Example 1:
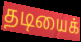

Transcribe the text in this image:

தடியைக்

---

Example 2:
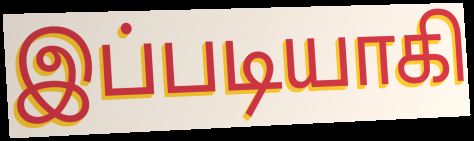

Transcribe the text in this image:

இப்படியாகி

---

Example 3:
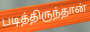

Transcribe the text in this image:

படித்திருந்தான்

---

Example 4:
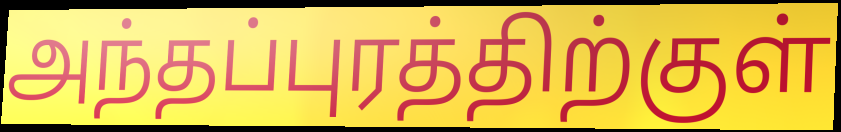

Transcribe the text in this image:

அந்தப்புரத்திற்குள்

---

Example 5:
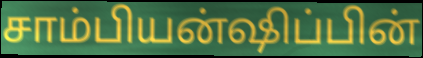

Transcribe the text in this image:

சாம்பியன்ஷிப்பின்